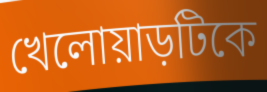
খেলোয়াড়টিকে